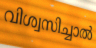
വിശ്വസിച്ചാൽ